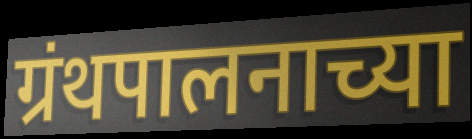
ग्रंथपालनाच्या